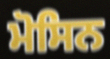
ਮੋਸਿਨ